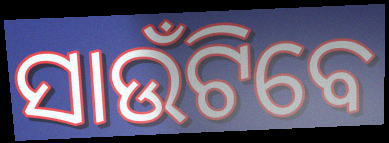
ସାଉଁଟିବେ